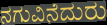
ನಗುವಿನೆದುರು